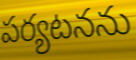
పర్యటనను